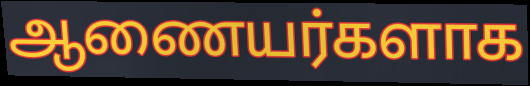
ஆணையர்களாக